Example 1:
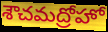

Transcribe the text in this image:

శౌచమద్రోహో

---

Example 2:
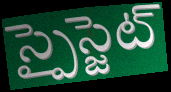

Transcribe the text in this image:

స్పైస్జెట్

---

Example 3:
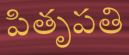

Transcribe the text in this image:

పితృపతి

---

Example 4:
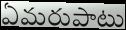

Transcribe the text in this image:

ఏమరుపాటు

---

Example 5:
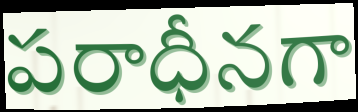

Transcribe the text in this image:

పరాధీనగా